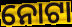
ନୋଟା